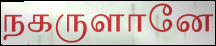
நகருளானே